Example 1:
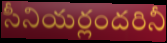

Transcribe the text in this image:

సీనియర్లందరినీ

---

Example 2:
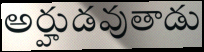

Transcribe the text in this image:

అర్హుడవుతాడు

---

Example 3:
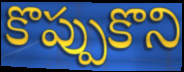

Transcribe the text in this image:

కొప్పుకొని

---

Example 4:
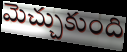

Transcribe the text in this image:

మెచ్చుకుంది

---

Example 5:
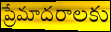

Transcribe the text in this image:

ప్రేమాదరాలకు